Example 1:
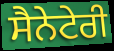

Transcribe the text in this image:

ਸੈਨੇਟੇਰੀ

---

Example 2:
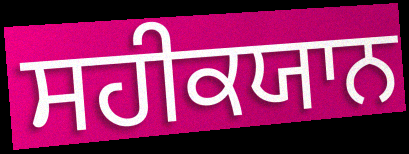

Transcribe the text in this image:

ਸਹੀਕਯਾਨ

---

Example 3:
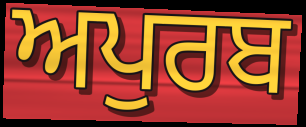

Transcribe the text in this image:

ਅਪੁਰਬ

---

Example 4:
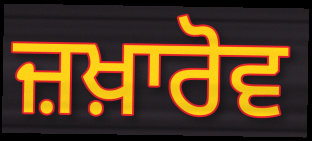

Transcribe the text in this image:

ਜ਼ਖ਼ਾਰੋਵ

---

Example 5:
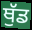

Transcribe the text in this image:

ਥੁੱਡ